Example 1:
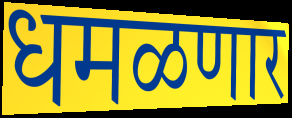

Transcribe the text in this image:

धमळणार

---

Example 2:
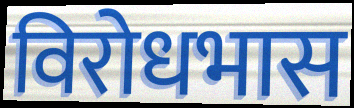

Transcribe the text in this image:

विरोधभास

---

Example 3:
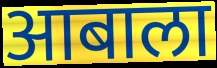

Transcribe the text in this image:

आबाला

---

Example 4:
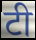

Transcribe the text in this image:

टी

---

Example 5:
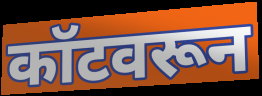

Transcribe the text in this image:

कॉटवरून